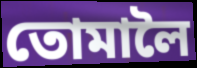
তোমালৈ